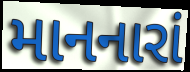
માનનારાં